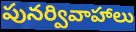
పునర్వివాహాలు